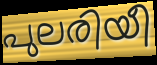
പുലരിയീ